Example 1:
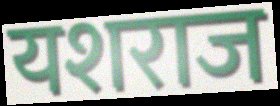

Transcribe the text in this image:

यशराज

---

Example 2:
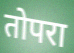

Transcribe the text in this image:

तोपरा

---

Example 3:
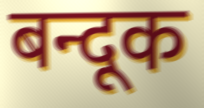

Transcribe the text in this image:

बन्दूक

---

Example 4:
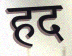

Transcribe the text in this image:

हद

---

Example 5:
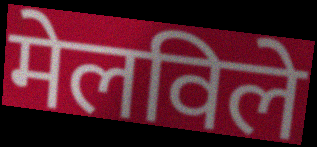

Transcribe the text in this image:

मेलविले